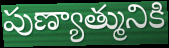
పుణ్యాత్మునికి